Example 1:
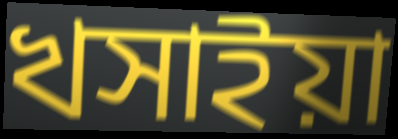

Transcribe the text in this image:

খসাইয়া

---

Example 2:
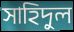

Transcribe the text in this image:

সাহিদুল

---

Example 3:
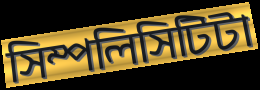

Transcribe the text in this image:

সিম্পলিসিটিটা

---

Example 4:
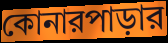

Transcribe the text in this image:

কোনারপাড়ার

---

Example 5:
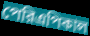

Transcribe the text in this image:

পেরিএপিকাল